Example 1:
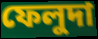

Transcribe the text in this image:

ফেলুদা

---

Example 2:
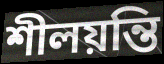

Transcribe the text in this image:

শীলয়ন্তি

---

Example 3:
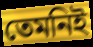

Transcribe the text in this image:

তেমনিই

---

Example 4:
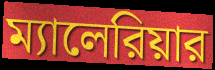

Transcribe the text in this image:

ম্যালেরিয়ার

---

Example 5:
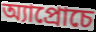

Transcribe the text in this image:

অ্যাপ্রোচে